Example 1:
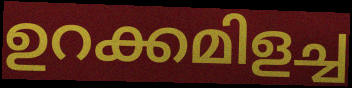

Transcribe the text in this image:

ഉറക്കമിളച്ച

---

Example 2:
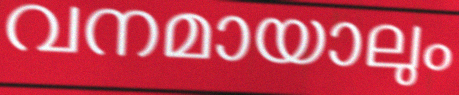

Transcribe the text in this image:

വനമായാലും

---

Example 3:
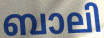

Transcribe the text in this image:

ബാലി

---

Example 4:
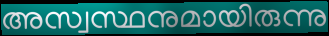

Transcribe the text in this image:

അസ്വസ്ഥനുമായിരുന്നു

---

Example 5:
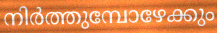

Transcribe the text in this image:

നിർത്തുമ്പോഴേക്കും